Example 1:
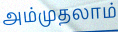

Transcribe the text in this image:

அம்முதலாம்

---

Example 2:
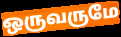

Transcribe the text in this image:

ஒருவருமே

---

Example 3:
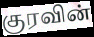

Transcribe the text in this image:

குரவின்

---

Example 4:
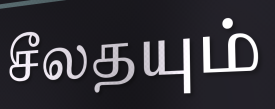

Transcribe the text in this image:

சீலதயும்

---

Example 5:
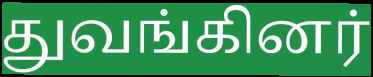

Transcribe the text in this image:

துவங்கினர்